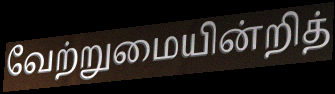
வேற்றுமையின்றித்